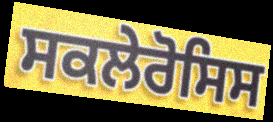
ਸਕਲੇਰੋਸਿਸ